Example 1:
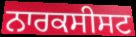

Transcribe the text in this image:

ਨਾਰਕਸੀਸਟ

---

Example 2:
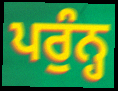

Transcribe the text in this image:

ਪਰੁੰਨ੍ਹ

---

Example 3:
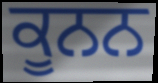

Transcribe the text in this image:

ਕੂਨਨ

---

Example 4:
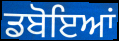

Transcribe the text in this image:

ਡਬੋਇਆਂ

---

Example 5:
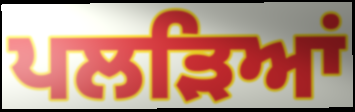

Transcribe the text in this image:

ਪਲੜਿਆਂ